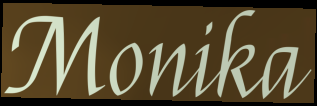
Monika